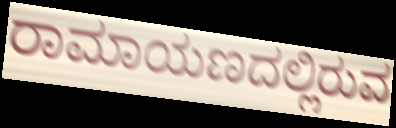
ರಾಮಾಯಣದಲ್ಲಿರುವ